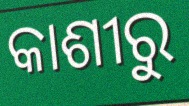
କାଶୀରୁ